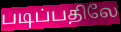
படிப்பதிலே